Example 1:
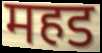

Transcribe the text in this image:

महड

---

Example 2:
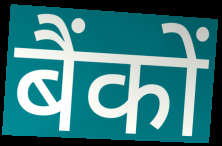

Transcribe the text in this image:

बैंकों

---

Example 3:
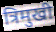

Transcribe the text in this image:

त्रिमुखी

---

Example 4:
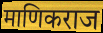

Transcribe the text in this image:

माणिकराज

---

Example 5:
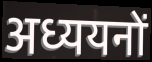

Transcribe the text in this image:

अध्ययनों